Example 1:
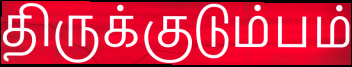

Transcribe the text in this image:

திருக்குடும்பம்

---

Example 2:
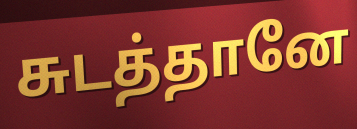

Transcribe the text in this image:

சுடத்தானே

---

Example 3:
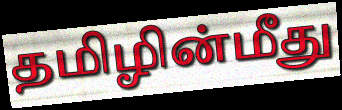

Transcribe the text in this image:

தமிழின்மீது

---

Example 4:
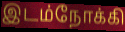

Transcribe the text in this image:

இடம்நோக்கி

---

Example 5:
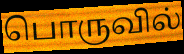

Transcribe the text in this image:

பொருவில்